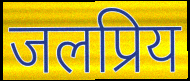
जलप्रिय